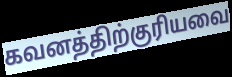
கவனத்திற்குரியவை